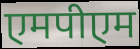
एमपीएम